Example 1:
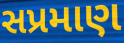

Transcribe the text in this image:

સપ્રમાણ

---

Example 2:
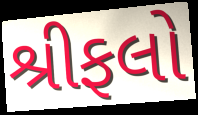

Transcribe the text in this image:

શ્રીફલો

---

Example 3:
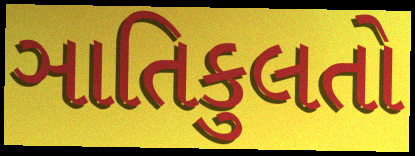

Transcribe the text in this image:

ઞાતિકુલતો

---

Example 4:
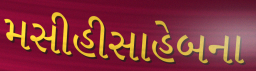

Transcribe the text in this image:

મસીહીસાહેબના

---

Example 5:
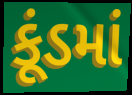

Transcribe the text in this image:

કૂંડમાં